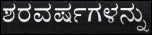
ಶರವರ್ಷಗಳನ್ನು